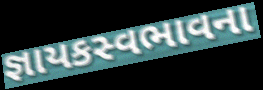
જ્ઞાયકસ્વભાવના